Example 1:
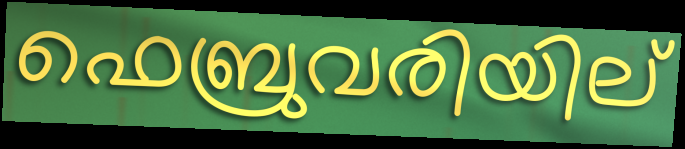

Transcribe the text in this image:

ഫെബ്രുവരിയില്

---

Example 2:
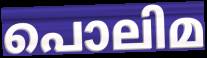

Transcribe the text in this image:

പൊലിമ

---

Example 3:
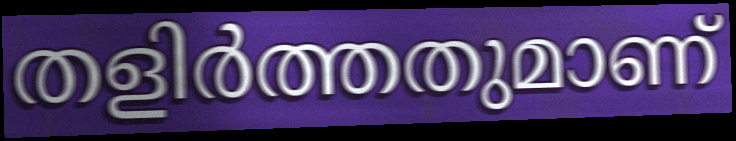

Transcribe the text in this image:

തളിർത്തതുമാണ്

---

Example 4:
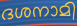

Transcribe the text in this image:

ദശനാമി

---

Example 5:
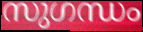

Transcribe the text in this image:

സുഗന്ധം